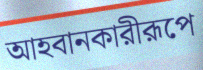
আহবানকারীরূপে